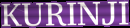
KURINJI